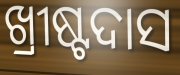
ଖ୍ରୀଷ୍ଟଦାସ